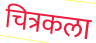
चित्रकला